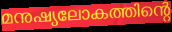
മനുഷ്യലോകത്തിന്റെ